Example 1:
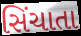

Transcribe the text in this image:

સિંચાતા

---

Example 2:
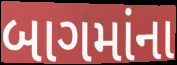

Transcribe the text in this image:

બાગમાંના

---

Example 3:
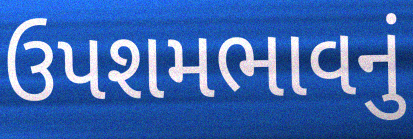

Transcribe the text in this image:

ઉપશમભાવનું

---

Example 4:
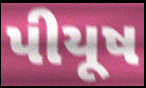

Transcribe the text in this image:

પીયૂષ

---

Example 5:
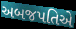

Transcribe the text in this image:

અબજપતિએ